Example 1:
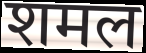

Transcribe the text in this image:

शमल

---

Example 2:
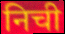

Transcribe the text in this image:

निची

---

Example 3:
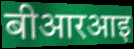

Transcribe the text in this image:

बीआरआइ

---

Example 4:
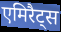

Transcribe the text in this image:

एमिरैट्स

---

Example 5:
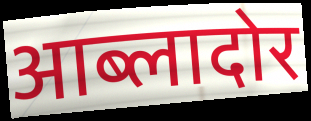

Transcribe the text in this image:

आब्लादोर